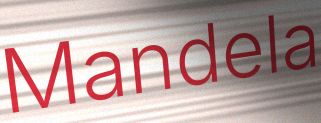
Mandela